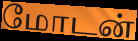
மோடன்